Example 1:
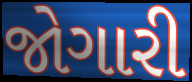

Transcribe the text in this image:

જોગારી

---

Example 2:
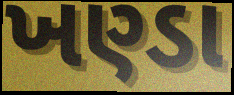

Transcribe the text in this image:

ખણ્ડા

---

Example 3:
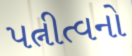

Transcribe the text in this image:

પત્નીત્વનો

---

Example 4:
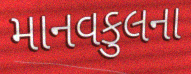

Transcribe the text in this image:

માનવકુલના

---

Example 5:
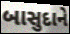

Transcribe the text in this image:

બાસુદાને